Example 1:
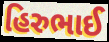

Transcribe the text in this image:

હિરુભાઈ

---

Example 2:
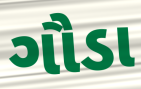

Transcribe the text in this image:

ગૌડા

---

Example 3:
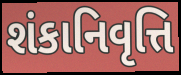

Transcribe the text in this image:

શંકાનિવૃત્તિ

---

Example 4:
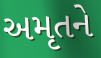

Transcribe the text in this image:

અમૃતને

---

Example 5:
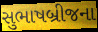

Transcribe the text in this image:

સુભાષબ્રીજના